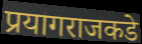
प्रयागराजकडे